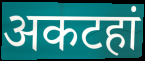
अकटहां